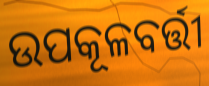
ଉପକୂଳବର୍ତ୍ତୀ